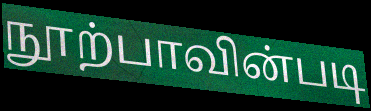
நூற்பாவின்படி